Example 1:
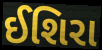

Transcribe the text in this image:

ઈશિરા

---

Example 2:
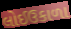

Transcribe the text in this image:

લોઈઉકાળા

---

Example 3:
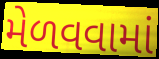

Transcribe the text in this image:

મેળવવામાં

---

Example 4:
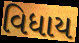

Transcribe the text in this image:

વિધાય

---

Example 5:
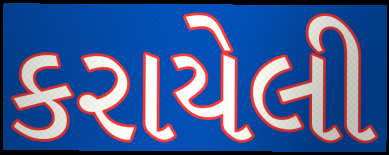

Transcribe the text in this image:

કરાયેલી